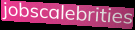
jobscalebrities